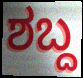
ಶಬ್ದ